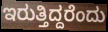
ಇರುತ್ತಿದ್ದರೆಂದು